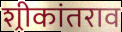
श्रीकांतराव